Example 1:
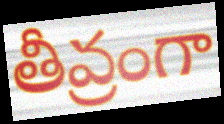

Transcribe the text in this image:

తీవ్రంగా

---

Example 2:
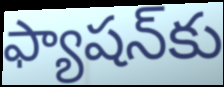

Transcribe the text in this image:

ఫ్యాషన్‌కు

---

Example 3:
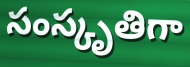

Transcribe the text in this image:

సంస్కృతిగా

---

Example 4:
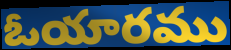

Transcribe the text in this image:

ఓయారము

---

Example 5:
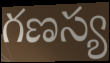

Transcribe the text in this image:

గణస్య